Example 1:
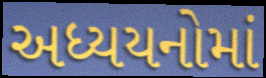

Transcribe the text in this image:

અધ્યયનોમાં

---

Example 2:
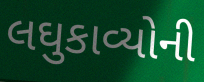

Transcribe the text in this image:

લઘુકાવ્યોની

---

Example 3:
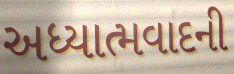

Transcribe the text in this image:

અધ્યાત્મવાદની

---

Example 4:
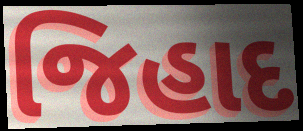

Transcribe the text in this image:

જિહાદ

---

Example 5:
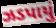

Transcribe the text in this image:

ઝડપાયું